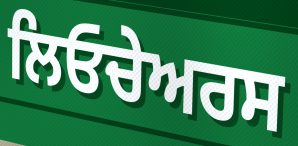
ਲਿਓਚੇਅਰਸ